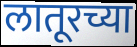
लातूरच्या